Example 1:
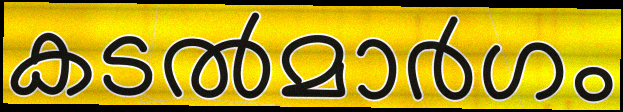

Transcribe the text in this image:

കടൽമാർഗം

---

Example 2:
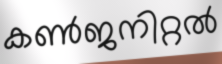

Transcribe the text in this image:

കൺജനിറ്റൽ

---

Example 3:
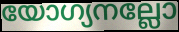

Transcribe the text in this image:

യോഗ്യനല്ലോ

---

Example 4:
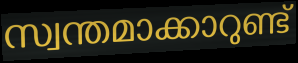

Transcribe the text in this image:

സ്വന്തമാക്കാറുണ്ട്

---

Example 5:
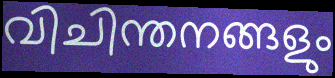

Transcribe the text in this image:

വിചിന്തനങ്ങളും